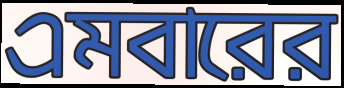
এমবারের